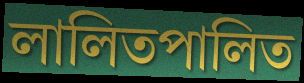
লালিতপালিত